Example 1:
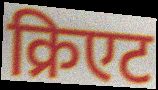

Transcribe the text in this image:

क्रिएट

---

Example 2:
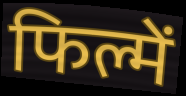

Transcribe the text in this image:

फिल्में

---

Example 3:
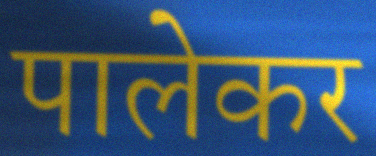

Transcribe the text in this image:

पालेकर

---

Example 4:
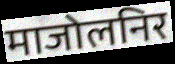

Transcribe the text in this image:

माजोलनिर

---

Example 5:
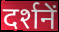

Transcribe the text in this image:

दर्शनें